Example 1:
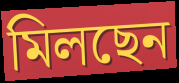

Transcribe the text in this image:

মিলছেন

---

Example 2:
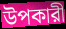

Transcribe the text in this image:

উপকারী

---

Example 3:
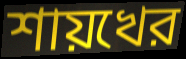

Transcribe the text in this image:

শায়খের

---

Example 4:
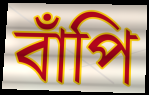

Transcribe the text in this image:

বাঁপি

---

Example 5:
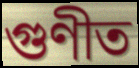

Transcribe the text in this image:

গুণীত